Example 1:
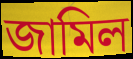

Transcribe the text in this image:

জামিল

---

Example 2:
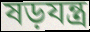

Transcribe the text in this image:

ষড়যন্ত্র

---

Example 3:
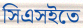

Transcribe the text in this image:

সিএসইতে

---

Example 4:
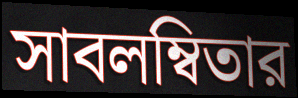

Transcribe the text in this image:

সাবলম্বিতার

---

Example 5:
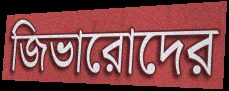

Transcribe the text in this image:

জিভারোদের